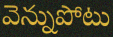
వెన్నుపోటు